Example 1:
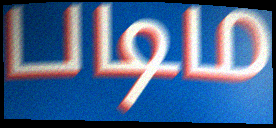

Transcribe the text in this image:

படிம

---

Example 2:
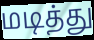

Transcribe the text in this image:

மடித்து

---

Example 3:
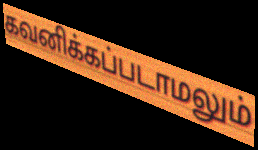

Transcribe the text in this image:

கவனிக்கப்படாமலும்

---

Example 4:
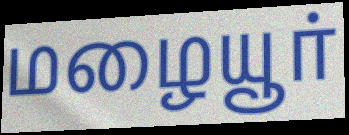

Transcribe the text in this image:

மழையூர்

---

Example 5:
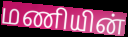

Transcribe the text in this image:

மணியின்